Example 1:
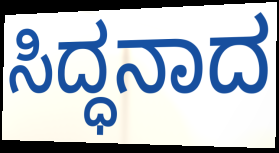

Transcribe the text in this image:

ಸಿದ್ಧನಾದ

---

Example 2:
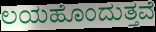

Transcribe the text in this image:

ಲಯಹೊಂದುತ್ತವೆ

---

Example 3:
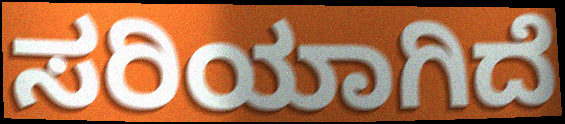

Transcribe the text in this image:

ಸರಿಯಾಗಿದೆ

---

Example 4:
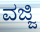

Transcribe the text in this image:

ವಜ್ಜಿ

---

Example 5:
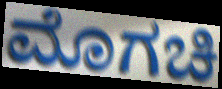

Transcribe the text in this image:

ಮೊಗಚಿ